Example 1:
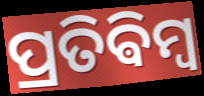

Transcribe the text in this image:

ପ୍ରତିଵିମ୍ବ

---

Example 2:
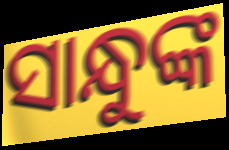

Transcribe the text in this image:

ସାନ୍ଧୁଙ୍କ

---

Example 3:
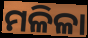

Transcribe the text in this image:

ମଳିଳା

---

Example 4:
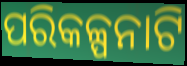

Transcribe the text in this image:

ପରିକଳ୍ପନାଟି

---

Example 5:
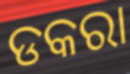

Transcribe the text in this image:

ଡକରା